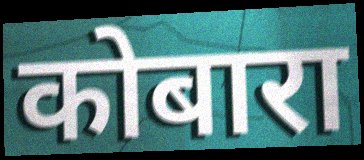
कोबारा